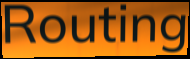
Routing